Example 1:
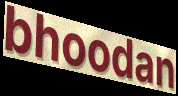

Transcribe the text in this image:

bhoodan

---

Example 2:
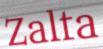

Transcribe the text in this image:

Zalta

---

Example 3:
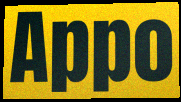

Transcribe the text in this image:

Appo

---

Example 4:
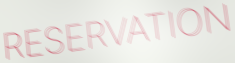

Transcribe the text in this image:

RESERVATION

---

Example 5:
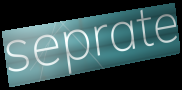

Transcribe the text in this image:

seprate